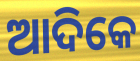
ଆଦିକେ